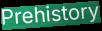
Prehistory